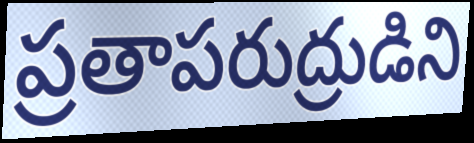
ప్రతాపరుద్రుడిని